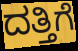
ದತ್ತಿಗೆ